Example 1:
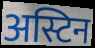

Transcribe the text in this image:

अस्टिन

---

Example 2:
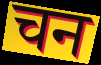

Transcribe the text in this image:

चन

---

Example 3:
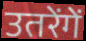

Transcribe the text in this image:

उतरेंगें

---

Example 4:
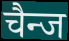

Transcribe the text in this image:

चैन्ज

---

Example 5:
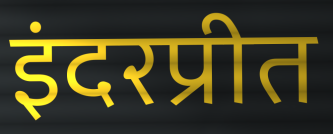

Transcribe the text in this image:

इंदरप्रीत